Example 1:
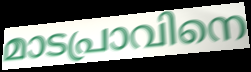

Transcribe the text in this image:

മാടപ്രാവിനെ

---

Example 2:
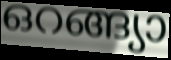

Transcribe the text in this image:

ഒറങ്ങ്യാ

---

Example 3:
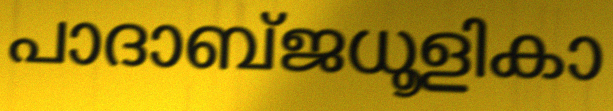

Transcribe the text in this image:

പാദാബ്ജധൂളികാ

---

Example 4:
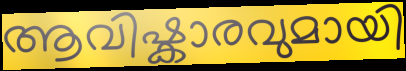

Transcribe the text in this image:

ആവിഷ്കാരവുമായി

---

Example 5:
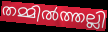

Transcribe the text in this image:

തമ്മിൽത്തല്ലി